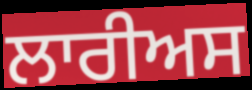
ਲਾਰੀਅਸ